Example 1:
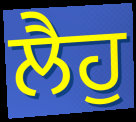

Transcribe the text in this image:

ਲੈਹੁ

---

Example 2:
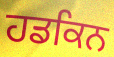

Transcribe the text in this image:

ਹਡਕਿਨ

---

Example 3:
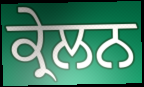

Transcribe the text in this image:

ਕ੍ਰੇਲਨ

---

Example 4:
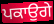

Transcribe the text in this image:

ਪਕਾਉਗੇ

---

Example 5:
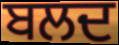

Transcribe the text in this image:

ਬਲਦ